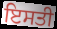
ਇਸਤੀ